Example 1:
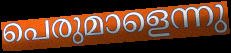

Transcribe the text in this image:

പെരുമാളെന്നു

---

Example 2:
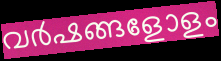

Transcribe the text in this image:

വർഷങ്ങളോളം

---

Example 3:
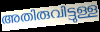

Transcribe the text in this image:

അതിരുവിട്ടുള്ള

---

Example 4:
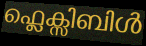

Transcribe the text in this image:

ഫ്ലെക്സിബിൾ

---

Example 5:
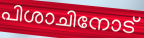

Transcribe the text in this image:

പിശാചിനോട്